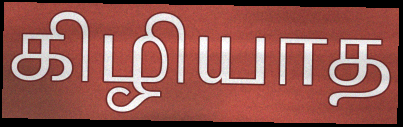
கிழியாத